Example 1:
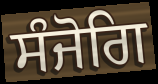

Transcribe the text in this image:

ਸੰਜੋਗਿ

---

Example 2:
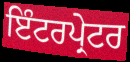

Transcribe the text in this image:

ਇੰਟਰਪ੍ਰੇਟਰ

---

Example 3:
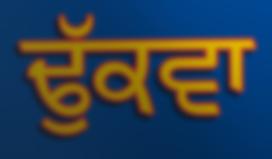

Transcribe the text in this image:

ਢੁੱਕਵਾ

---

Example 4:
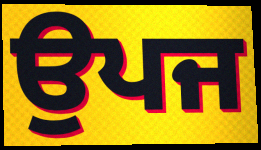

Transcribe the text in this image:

ਉਪਜ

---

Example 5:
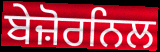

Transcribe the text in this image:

ਬੇਜ਼ੋਰਨਿਲ